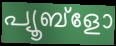
പ്യൂബ്ളോ